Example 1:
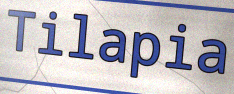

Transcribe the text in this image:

Tilapia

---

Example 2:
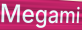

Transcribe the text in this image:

Megami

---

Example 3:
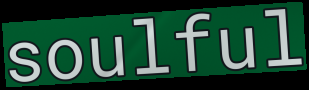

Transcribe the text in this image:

soulful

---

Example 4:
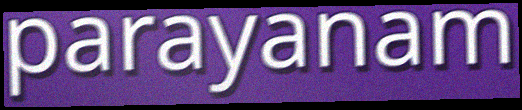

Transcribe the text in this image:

parayanam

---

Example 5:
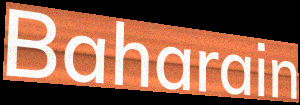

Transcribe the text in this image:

Baharain